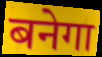
बनेगा